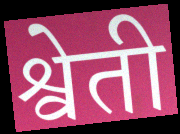
श्वेती